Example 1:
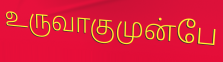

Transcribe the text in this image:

உருவாகுமுன்பே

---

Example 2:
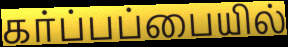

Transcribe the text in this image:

கர்ப்பப்பையில்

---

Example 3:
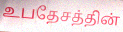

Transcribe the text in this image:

உபதேசத்தின்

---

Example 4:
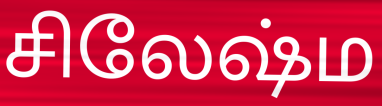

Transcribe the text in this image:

சிலேஷ்ம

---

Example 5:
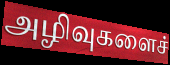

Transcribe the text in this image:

அழிவுகளைச்